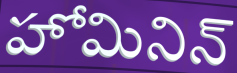
హోమినిన్